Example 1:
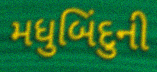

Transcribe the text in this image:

મધુબિંદુની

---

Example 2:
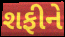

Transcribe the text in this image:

શફીને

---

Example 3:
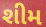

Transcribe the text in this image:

શીમ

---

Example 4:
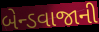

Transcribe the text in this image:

બેન્ડવાજાની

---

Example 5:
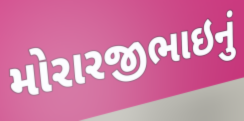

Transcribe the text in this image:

મોરારજીભાઇનું